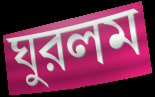
ঘুরলম